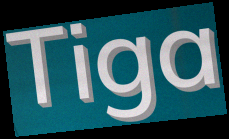
Tiga